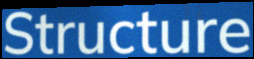
Structure